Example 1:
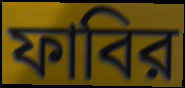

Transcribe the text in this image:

ফাবির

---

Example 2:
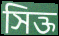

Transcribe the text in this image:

সিক্ত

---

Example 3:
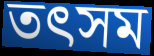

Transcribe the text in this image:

তৎসম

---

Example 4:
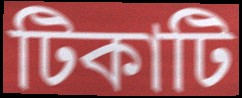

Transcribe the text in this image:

টিকাটি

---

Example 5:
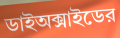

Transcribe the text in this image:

ডাইঅক্সাইডের